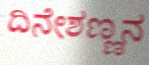
ದಿನೇಶಣ್ಣನ